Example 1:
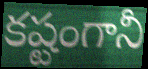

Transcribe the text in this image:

కష్టంగానీ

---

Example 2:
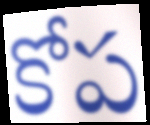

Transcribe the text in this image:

కోప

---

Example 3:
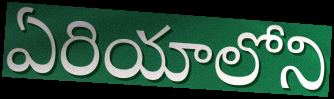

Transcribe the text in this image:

ఏరియాలోని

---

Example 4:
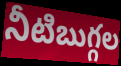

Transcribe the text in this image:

నీటిబుగ్గల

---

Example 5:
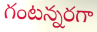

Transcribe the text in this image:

గంటన్నరగా